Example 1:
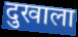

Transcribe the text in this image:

दुखाला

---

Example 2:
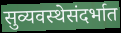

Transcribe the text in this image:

सुव्यवस्थेसंदर्भात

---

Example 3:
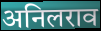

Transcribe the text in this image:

अनिलराव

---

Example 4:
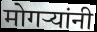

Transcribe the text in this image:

मोगऱ्यांनी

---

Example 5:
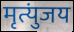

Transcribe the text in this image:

मृत्युंजय